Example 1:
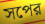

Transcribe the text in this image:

সপের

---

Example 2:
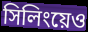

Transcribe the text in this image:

সিলিংয়েও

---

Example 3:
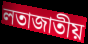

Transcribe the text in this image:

লতাজাতীয়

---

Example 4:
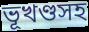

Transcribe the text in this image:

ভূখণ্ডসহ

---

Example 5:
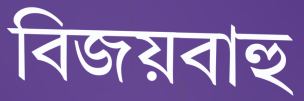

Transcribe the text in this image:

বিজয়বাহু